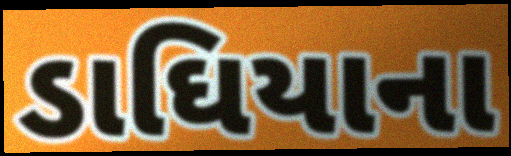
ડાઘિયાના